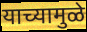
याच्यामुळे